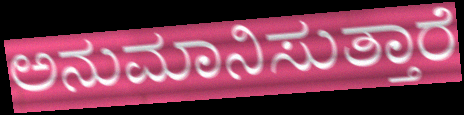
ಅನುಮಾನಿಸುತ್ತಾರೆ